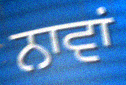
ਨਾਵਾਂ